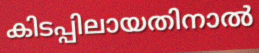
കിടപ്പിലായതിനാൽ